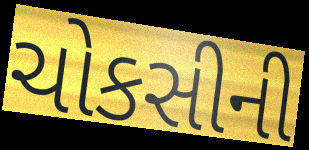
ચોકસીની